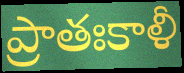
ప్రాతఃకాళీ